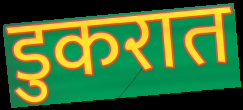
डुकरात